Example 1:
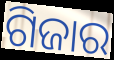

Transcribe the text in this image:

ଗିଜାର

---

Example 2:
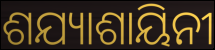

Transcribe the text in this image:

ଶଯ୍ୟାଶାୟିନୀ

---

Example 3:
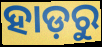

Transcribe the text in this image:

ହାଡ଼ରୁ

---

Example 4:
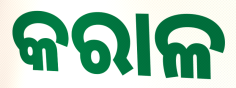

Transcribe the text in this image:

କରାଳ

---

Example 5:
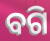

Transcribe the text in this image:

ବଗି